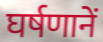
घर्षणानें